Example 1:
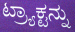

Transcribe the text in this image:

ಟ್ರ್ಯಾಕ್ಟನ್ನು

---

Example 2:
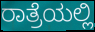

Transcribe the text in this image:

ರಾತ್ರೆಯಲ್ಲಿ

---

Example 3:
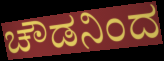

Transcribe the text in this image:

ಚೌಡನಿಂದ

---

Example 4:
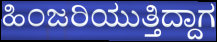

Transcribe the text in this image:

ಹಿಂಜರಿಯುತ್ತಿದ್ದಾಗ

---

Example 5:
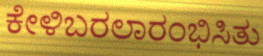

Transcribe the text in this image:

ಕೇಳಿಬರಲಾರಂಭಿಸಿತು